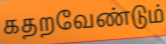
கதறவேண்டும்